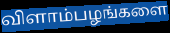
விளாம்பழங்களை